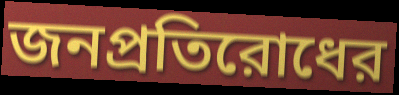
জনপ্রতিরোধের